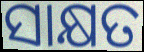
ସାକ୍ଷତ